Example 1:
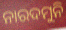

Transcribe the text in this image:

ନାରଦମୁନି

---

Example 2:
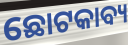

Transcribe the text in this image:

ଛୋଟକାବ୍ୟ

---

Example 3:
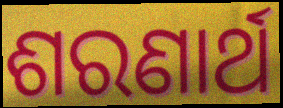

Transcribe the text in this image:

ଶରଣାର୍ଥ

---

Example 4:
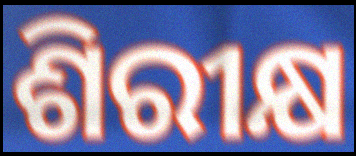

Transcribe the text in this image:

ଶିରୀକ୍ଷ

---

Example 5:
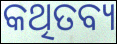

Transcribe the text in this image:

କଥିତବ୍ୟ